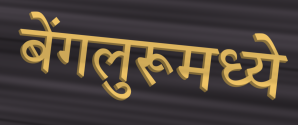
बेंगलुरूमध्ये